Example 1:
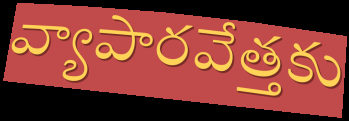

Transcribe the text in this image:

వ్యాపారవేత్తకు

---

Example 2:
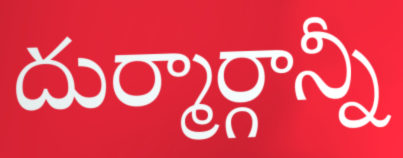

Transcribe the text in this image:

దుర్మార్గాన్నీ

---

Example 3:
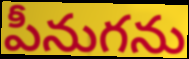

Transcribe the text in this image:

పీనుగను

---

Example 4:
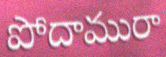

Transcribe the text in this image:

పోదామురా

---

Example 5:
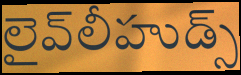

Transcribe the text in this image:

లైవ్‌లీహుడ్స్